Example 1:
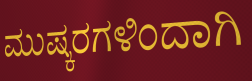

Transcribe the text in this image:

ಮುಷ್ಕರಗಳಿಂದಾಗಿ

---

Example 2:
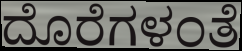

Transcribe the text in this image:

ದೊರೆಗಳಂತೆ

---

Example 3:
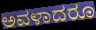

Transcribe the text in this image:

ಅವಳಾದರೂ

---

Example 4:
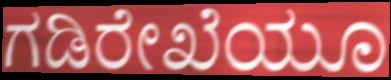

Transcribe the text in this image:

ಗಡಿರೇಖೆಯೂ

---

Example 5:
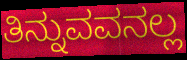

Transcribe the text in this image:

ತಿನ್ನುವವನಲ್ಲ